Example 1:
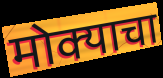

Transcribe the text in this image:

मोक्याचा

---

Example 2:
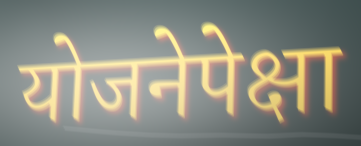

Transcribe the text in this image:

योजनेपेक्षा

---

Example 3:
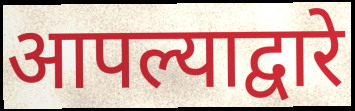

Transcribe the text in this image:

आपल्याद्वारे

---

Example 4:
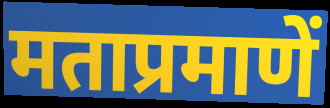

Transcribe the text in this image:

मताप्रमाणें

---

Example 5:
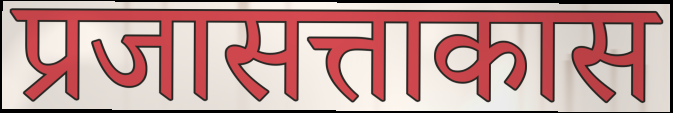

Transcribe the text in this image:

प्रजासत्ताकास